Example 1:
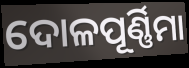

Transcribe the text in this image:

ଦୋଳପୂର୍ଣ୍ଣିମା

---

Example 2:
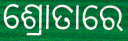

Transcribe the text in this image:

ଶ୍ରୋତାରେ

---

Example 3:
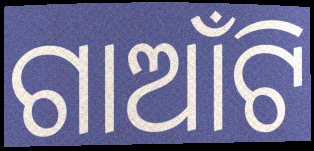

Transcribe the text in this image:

ଗାଆଁଟି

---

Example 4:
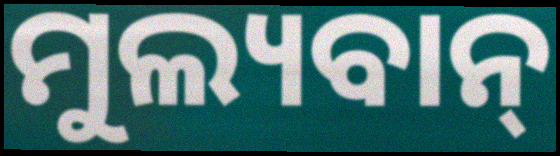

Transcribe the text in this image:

ମୁଲ୍ୟବାନ୍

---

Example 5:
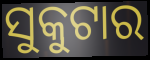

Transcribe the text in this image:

ସୁକୁଟାର